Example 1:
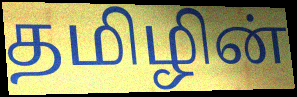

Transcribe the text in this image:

தமிழின்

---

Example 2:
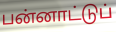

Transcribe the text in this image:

பன்னாட்டுப்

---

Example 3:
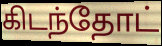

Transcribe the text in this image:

கிடந்தோட்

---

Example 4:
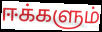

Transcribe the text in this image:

ஈக்களும்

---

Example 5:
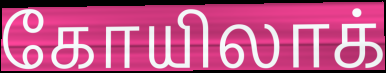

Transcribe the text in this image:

கோயிலாக்